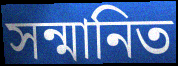
সন্মানিত